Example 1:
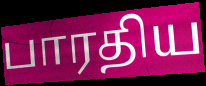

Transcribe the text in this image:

பாரதிய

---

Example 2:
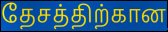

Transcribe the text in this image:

தேசத்திற்கான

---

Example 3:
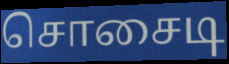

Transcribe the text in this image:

சொசைடி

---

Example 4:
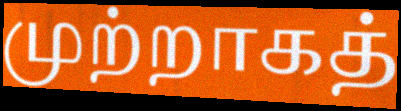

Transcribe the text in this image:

முற்றாகத்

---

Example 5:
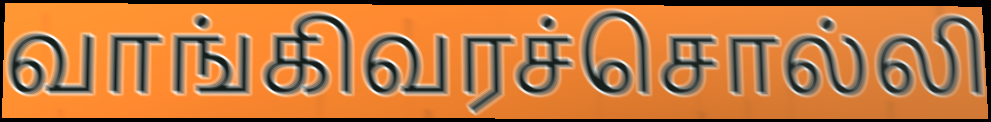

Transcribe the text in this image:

வாங்கிவரச்சொல்லி